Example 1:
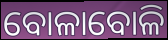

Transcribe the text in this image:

ବୋଳାବୋଳି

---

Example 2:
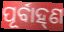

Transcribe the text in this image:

ପୂର୍ବାହ୍‌ଣ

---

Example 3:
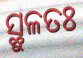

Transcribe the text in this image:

ସ୍ଥୁଳତଃ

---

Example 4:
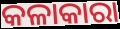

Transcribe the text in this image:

କଳାକାରା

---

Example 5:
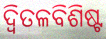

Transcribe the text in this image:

ଦ୍ୱିତଳବିଶିଷ୍ଟ